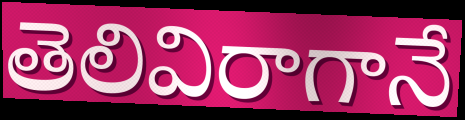
తెలివిరాగానే